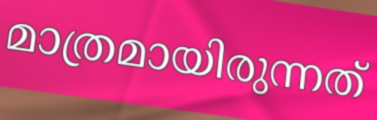
മാത്രമായിരുന്നത്